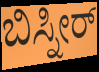
ಬಿಸ್ನೀರ್